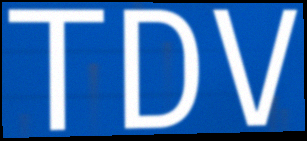
TDV